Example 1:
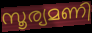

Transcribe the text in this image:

സൂര്യമണി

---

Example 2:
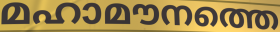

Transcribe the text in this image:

മഹാമൗനത്തെ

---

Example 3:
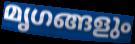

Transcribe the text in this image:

മൃഗങ്ങളും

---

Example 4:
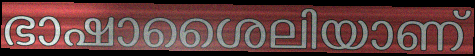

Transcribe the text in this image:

ഭാഷാശൈലിയാണ്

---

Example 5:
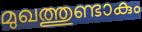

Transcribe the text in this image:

മുഖത്തുണ്ടാകും